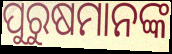
ପୁରୁଷମାନଙ୍କ